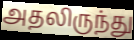
அதலிருந்து